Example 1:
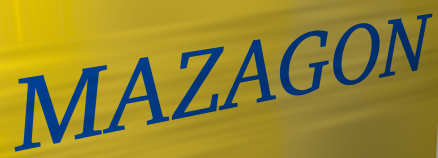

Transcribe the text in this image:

MAZAGON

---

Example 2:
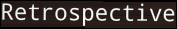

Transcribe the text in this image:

Retrospective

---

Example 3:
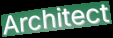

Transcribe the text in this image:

Architect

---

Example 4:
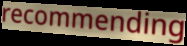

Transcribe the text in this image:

recommending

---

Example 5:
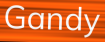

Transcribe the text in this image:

Gandy